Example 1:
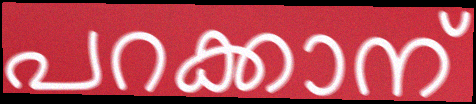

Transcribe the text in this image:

പറക്കാന്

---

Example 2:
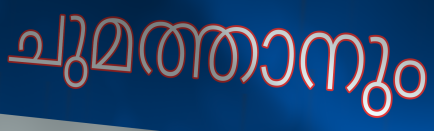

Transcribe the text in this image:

ചുമത്താനും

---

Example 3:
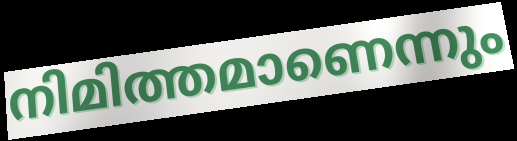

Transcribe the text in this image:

നിമിത്തമാണെന്നും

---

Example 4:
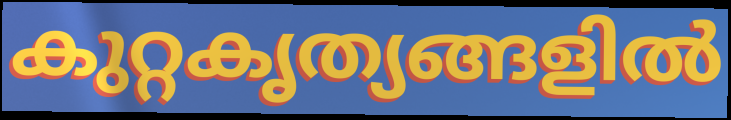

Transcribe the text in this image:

കുറ്റകൃത്യങ്ങളിൽ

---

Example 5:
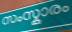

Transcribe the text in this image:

സംസ്കാരം